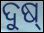
ଦୁଷ୍